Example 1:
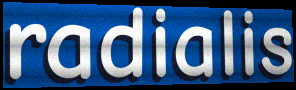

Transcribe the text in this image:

radialis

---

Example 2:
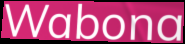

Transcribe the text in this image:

Wabona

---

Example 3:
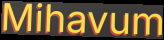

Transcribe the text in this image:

Mihavum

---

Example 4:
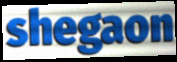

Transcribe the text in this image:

shegaon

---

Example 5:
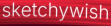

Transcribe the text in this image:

sketchywish